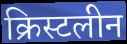
क्रिस्टलीन